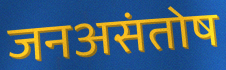
जनअसंतोष